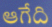
ఆగేది